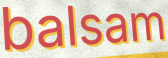
balsam